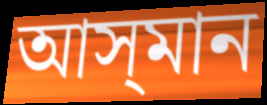
আস্‌মান